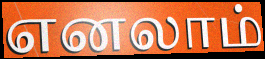
எனலாம்